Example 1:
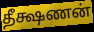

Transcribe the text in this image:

தீக்ஷணன்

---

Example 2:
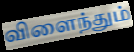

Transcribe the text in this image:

விளைந்தும்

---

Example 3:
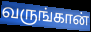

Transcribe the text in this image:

வருங்கான்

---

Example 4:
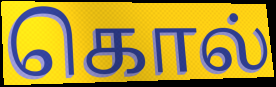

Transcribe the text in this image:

கொல்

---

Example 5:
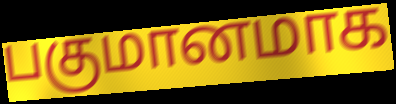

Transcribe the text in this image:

பகுமானமாக